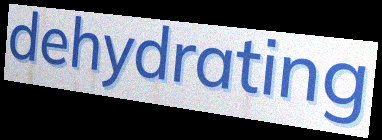
dehydrating